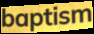
baptism